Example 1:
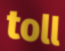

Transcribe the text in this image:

toll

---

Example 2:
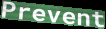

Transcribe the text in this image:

Prevent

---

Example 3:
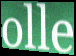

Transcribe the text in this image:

olle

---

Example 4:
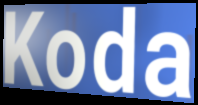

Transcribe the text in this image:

Koda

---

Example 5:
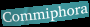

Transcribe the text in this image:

Commiphora